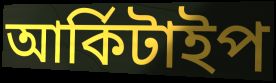
আৰ্কিটাইপ